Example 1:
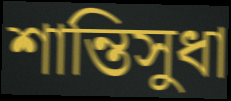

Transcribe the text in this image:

শান্তিসুধা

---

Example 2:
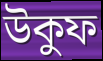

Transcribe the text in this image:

উকুফ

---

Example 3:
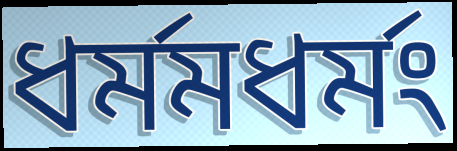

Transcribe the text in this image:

ধর্মমধর্মং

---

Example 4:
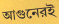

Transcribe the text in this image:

আগুনেরই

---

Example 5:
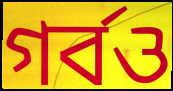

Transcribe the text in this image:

গর্বও